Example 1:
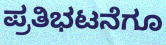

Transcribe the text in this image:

ಪ್ರತಿಭಟನೆಗೂ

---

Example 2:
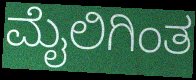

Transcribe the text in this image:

ಮೈಲಿಗಿಂತ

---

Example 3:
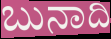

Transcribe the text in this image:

ಬುನಾದಿ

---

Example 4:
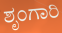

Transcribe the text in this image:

ಶೃಂಗಾರಿ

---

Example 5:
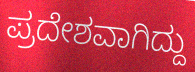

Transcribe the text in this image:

ಪ್ರದೇಶವಾಗಿದ್ದು